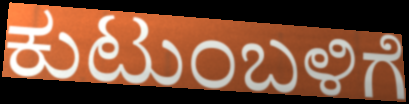
ಕುಟುಂಬಳಿಗೆ